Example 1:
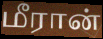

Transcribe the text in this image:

மீரான்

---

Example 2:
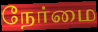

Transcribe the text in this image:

நேர்மை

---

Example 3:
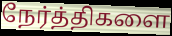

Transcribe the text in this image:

நேர்த்திகளை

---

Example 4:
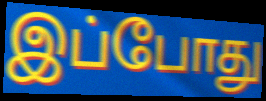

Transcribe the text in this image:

இப்போது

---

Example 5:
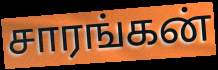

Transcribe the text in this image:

சாரங்கன்